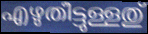
എഴുതീട്ടുള്ളതു്